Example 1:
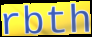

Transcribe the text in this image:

rbth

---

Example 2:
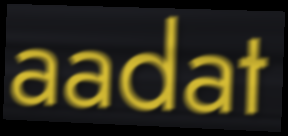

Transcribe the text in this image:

aadat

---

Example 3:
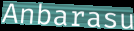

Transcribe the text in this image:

Anbarasu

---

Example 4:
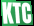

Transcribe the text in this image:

KTC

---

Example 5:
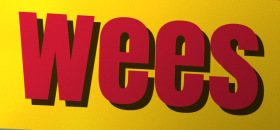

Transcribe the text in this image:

wees